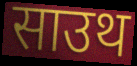
साउथ